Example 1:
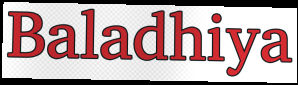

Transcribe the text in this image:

Baladhiya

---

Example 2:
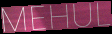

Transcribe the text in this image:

MEHUL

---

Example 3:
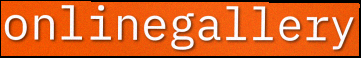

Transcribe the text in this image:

onlinegallery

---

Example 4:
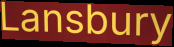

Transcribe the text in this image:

Lansbury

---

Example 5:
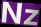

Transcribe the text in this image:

Nz